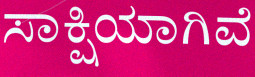
ಸಾಕ್ಷಿಯಾಗಿವೆ